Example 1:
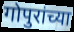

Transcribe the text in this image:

गोपुरांच्या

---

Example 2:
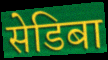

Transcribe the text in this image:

सेडिबा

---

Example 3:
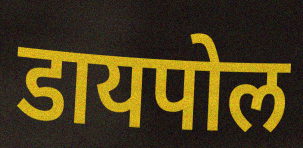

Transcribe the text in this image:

डायपोल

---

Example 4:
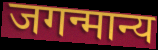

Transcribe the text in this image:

जगन्मान्य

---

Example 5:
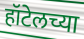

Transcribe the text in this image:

हॉटेलच्या